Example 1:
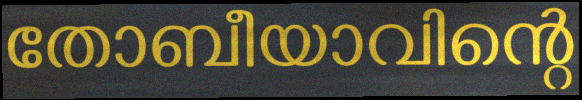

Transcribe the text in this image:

തോബീയാവിന്റെ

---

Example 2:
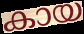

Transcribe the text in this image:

കായ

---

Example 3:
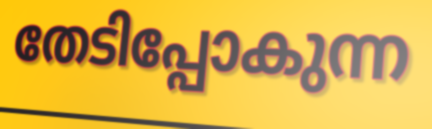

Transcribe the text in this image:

തേടിപ്പോകുന്ന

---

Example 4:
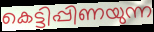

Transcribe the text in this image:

കെട്ടിപ്പിണയുന്ന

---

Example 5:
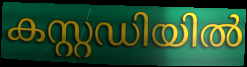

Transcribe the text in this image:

കസ്റ്റഡിയിൽ